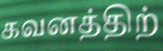
கவனத்திற்